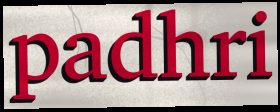
padhri